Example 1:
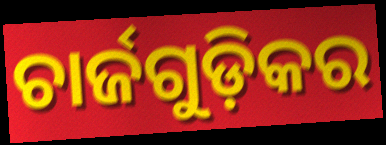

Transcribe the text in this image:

ଚାର୍ଜଗୁଡ଼ିକର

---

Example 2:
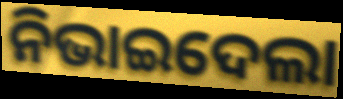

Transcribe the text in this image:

ନିଭାଇଦେଲା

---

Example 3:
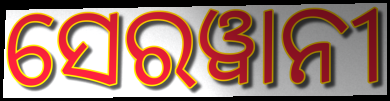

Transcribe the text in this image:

ସେରୱାନୀ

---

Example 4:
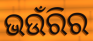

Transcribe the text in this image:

ଭଉଁରିର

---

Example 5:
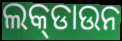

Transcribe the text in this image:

ଲକ୍‍ଡାଉନ